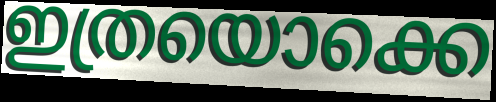
ഇത്രയൊക്കെ